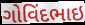
ગોવિંદભાઇ